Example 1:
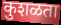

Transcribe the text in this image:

कुशळता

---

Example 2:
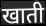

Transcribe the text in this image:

खाती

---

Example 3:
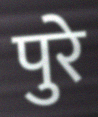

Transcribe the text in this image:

पुरे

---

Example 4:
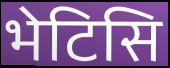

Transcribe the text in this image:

भेटिसि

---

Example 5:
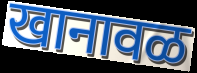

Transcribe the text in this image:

खानावळ